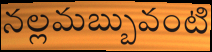
నల్లమబ్బువంటి